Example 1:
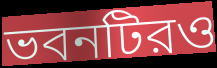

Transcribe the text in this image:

ভবনটিরও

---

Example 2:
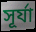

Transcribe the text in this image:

সূর্যা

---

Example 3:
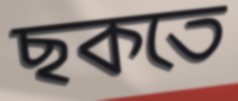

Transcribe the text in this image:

ছকতে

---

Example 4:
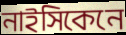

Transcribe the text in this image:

নাইসিকেনে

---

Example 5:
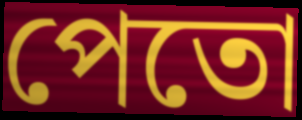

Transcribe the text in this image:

পেতো